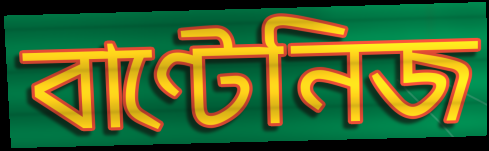
বাণ্টেনিজ